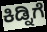
ಕಿಡ್ನಿಗೆ